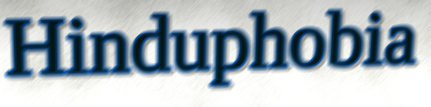
Hinduphobia